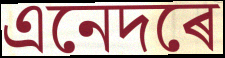
এনেদৰে